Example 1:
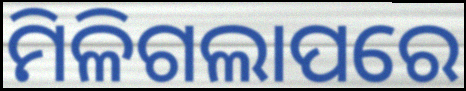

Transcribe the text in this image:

ମିଳିଗଲାପରେ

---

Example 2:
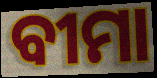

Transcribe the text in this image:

ବୀମା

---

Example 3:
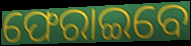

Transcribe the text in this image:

ଫେରାଇବେ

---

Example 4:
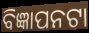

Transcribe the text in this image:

ବିଜ୍ଞାପନଟା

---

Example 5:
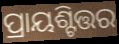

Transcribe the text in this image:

ପ୍ରାୟଶ୍ଟିତ୍ତର